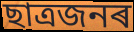
ছাত্ৰজনৰ